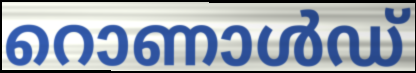
റൊണാൾഡ്